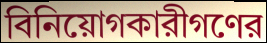
বিনিয়োগকারীগণের